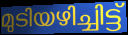
മുടിയഴിച്ചിട്ട്